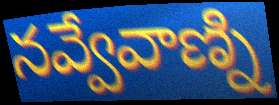
నవ్వేవాణ్ని